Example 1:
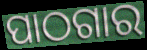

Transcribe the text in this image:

ପାଠଗାର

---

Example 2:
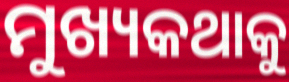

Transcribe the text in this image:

ମୁଖ୍ୟକଥାକୁ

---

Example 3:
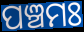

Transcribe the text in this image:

ପଞ୍ଚମଃ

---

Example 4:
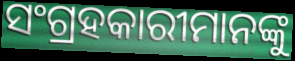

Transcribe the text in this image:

ସଂଗ୍ରହକାରୀମାନଙ୍କୁ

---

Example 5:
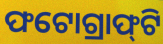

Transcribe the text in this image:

ଫଟୋଗ୍ରାଫ୍‌ଟି